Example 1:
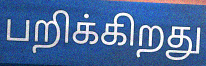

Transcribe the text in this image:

பறிக்கிறது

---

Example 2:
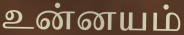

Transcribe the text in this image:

உன்னயம்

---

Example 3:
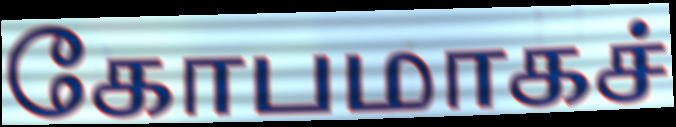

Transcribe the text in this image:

கோபமாகச்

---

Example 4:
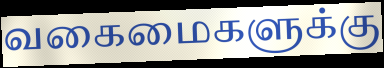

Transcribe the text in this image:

வகைமைகளுக்கு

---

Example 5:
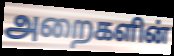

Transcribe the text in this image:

அறைகளின்